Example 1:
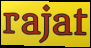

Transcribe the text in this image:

rajat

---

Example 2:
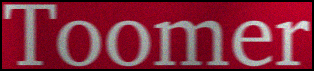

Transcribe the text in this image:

Toomer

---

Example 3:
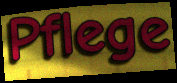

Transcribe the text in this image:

Pflege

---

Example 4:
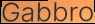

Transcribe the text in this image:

Gabbro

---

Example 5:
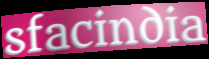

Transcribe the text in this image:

sfacindia